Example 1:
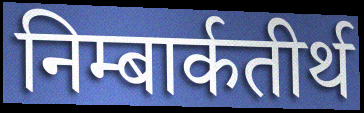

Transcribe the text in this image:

निम्बार्कतीर्थ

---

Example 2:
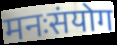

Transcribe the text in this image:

मनःसंयोग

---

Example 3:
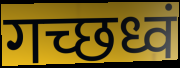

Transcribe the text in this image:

गच्छध्वं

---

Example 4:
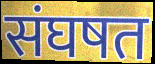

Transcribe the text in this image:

संघषत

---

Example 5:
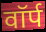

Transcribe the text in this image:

वॉर्प